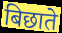
बिछाते